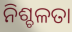
ନିଶ୍ଚଳତା